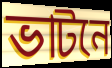
ভাটনে